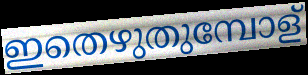
ഇതെഴുതുമ്പോള്